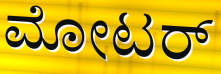
ಮೋಟರ್